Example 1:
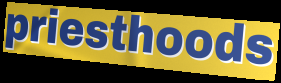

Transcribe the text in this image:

priesthoods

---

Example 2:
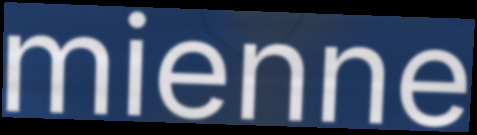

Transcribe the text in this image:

mienne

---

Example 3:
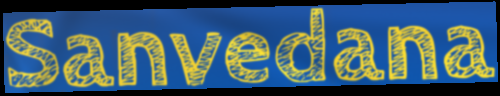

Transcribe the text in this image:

Sanvedana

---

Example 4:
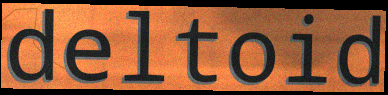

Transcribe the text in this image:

deltoid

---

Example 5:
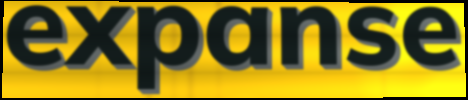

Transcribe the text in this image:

expanse